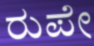
ರುಪೇ